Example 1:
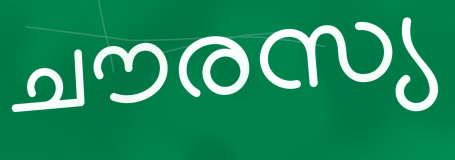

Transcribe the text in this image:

ചൗരസ്യ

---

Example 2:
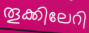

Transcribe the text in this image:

തൂക്കിലേറി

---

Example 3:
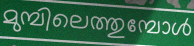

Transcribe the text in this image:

മുമ്പിലെത്തുമ്പോൾ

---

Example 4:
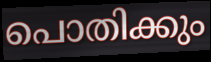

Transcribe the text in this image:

പൊതിക്കും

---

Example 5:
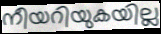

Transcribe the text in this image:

നീയറിയുകയില്ല